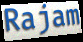
Rajam